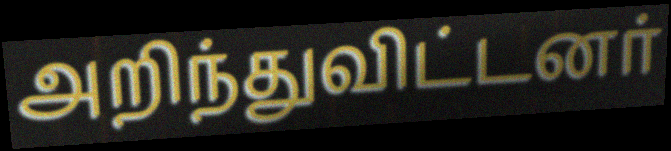
அறிந்துவிட்டனர்